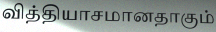
வித்தியாசமானதாகும்